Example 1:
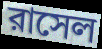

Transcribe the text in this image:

রাসেল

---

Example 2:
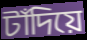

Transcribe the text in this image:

টাঁদিয়ে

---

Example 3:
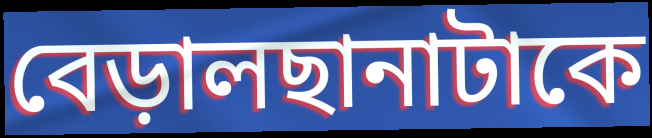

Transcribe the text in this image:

বেড়ালছানাটাকে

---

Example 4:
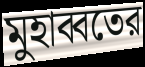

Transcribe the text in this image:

মুহাব্বতের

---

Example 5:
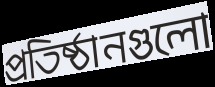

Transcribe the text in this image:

প্রতিষ্ঠানগুলো